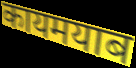
कायमयाब